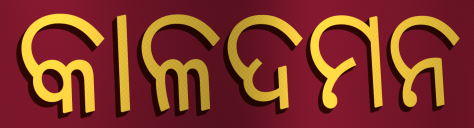
କାଳଦମନ